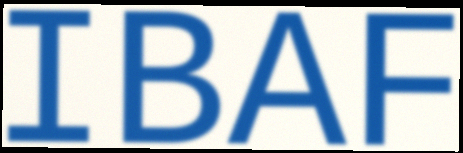
IBAF